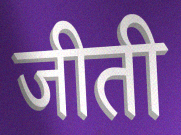
जीती